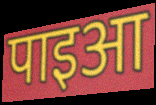
पाइआ